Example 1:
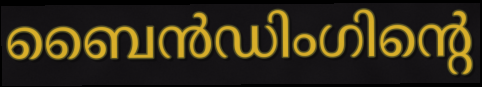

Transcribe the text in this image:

ബൈൻഡിംഗിന്റെ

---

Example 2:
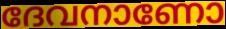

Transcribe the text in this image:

ദേവനാണോ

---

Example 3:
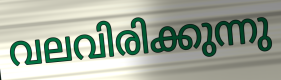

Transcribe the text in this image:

വലവിരിക്കുന്നു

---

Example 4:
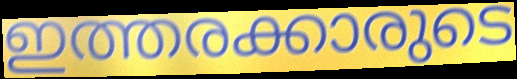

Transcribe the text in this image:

ഇത്തരക്കാരുടെ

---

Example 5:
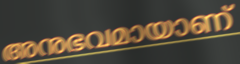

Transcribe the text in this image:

അനുഭവമായാണ്